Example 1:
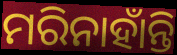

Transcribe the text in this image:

ମରିନାହାଁନ୍ତି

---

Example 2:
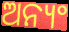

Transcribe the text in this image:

ଅନ୍ୟଂ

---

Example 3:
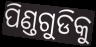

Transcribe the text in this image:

ପିଣ୍ଡଗୁଡିକୁ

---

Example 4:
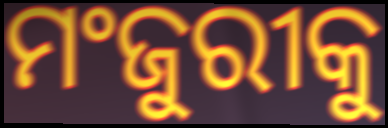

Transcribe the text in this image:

ମଂଜୁରୀକୁ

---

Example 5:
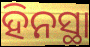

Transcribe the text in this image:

ହିନସ୍ଥା